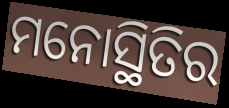
ମନୋସ୍ଥିତିର